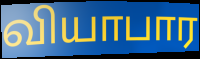
வியாபார